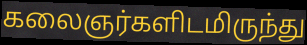
கலைஞர்களிடமிருந்து